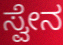
ಸ್ವೇನ